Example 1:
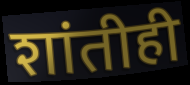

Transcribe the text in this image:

शांतीही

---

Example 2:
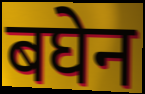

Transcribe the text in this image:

बघेन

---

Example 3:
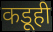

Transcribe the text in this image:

कडूही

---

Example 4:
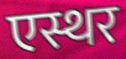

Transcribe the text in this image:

एस्थर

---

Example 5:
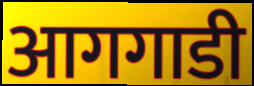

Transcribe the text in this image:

आगगाडी